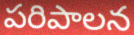
పరిపాలన